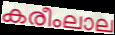
കരീംലാല